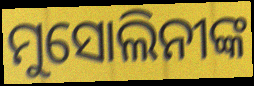
ମୁସୋଲିନୀଙ୍କ